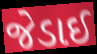
જેડાઈ